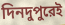
দিনদুপুরেই